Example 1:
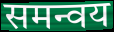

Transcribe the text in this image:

समन्वय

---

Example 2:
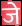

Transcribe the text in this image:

जे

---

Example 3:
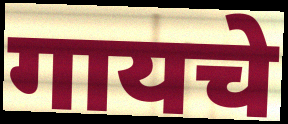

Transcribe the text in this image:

गायचे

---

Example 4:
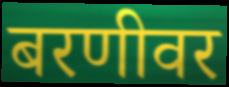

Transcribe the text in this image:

बरणीवर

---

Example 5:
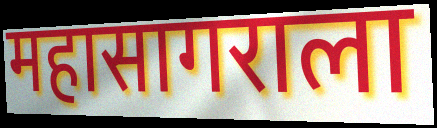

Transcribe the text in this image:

महासागराला